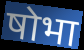
षोभा